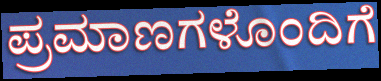
ಪ್ರಮಾಣಗಳೊಂದಿಗೆ